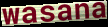
wasana